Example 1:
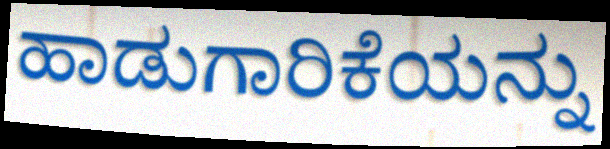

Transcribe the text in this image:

ಹಾಡುಗಾರಿಕೆಯನ್ನು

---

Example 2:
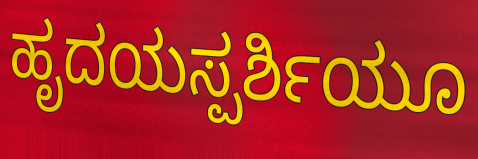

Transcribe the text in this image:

ಹೃದಯಸ್ಪರ್ಶಿಯೂ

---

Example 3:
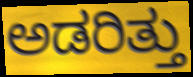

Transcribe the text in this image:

ಅಡರಿತ್ತು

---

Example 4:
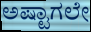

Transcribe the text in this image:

ಅಷ್ಟಾಗಲೇ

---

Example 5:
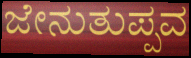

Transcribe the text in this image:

ಜೇನುತುಪ್ಪವ